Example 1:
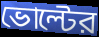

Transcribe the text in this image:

ভোল্টের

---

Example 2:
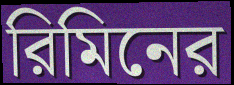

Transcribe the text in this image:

রিমিনের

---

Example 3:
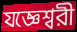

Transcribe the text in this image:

যজ্ঞেশ্বরী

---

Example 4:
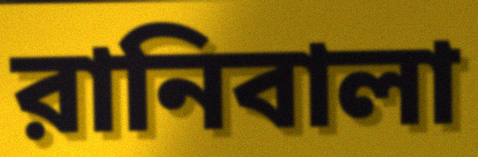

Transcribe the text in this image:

রানিবালা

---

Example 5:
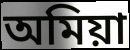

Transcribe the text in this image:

অমিয়া